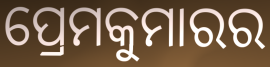
ପ୍ରେମକୁମାରର